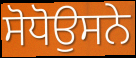
ਸੋਧੋਉਸਨੇ